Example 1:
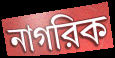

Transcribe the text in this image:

নাগরিক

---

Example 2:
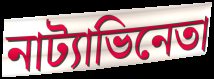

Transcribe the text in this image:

নাট্যাভিনেতা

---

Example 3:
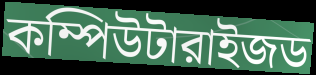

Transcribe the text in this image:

কম্পিউটারাইজড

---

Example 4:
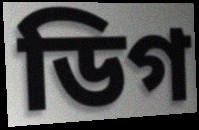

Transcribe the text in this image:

ডিগ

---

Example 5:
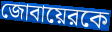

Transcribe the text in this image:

জোবায়েরকে